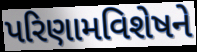
પરિણામવિશેષને